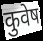
कुवेष